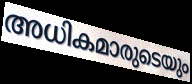
അധികമാരുടെയും